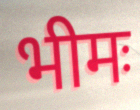
भीमः